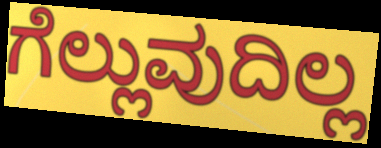
ಗೆಲ್ಲುವುದಿಲ್ಲ